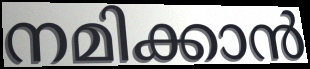
നമിക്കാൻ